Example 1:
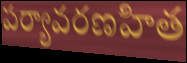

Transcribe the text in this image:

పర్యావరణహిత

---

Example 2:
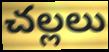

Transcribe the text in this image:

చల్లలు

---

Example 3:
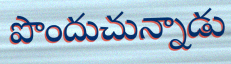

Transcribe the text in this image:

పొందుచున్నాడు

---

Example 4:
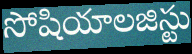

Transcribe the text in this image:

సోషియాలజిస్టు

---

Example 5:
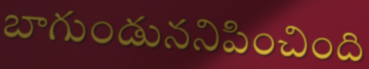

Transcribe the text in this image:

బాగుండుననిపించింది